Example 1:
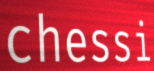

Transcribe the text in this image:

chessi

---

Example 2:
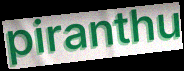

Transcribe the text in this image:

piranthu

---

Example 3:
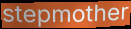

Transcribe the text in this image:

stepmother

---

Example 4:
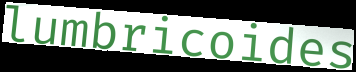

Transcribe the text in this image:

lumbricoides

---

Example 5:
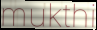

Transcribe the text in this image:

mukthi